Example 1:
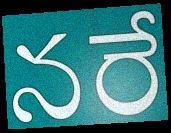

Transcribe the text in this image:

నరే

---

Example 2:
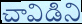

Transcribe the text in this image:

చావిడిని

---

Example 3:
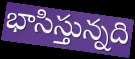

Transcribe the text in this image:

భాసిస్తున్నది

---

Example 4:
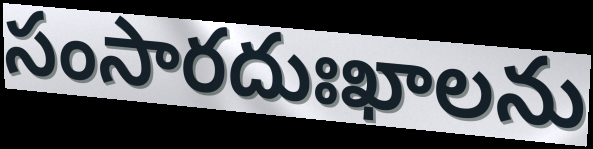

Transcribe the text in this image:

సంసారదుఃఖాలను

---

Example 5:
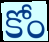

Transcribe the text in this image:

కోం